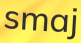
smaj